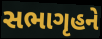
સભાગૃહને